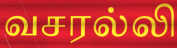
வசரல்லி